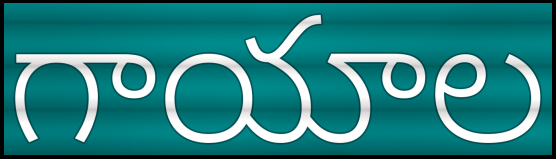
గాయాల